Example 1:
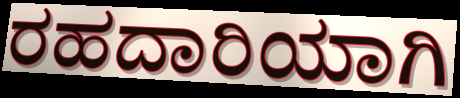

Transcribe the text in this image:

ರಹದಾರಿಯಾಗಿ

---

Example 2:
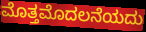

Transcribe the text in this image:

ಮೊತ್ತಮೊದಲನೆಯದು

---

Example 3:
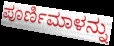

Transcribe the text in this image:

ಪೂರ್ಣಿಮಾಳನ್ನು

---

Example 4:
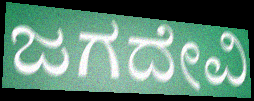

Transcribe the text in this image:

ಜಗದೇವಿ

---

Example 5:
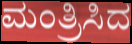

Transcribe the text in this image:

ಮಂತ್ರಿಸಿದ